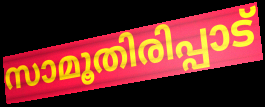
സാമൂതിരിപ്പാട്